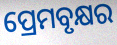
ପ୍ରେମବୃକ୍ଷର